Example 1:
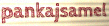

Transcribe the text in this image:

pankajsamel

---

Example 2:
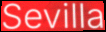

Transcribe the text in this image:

Sevilla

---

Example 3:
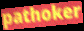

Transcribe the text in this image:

pathoker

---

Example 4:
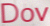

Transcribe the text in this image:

Dov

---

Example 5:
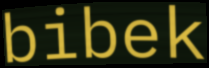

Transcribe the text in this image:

bibek